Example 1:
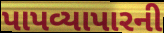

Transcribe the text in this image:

પાપવ્યાપારની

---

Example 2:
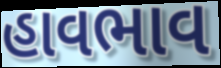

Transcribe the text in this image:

હાવભાવ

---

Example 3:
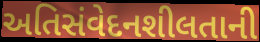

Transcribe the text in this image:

અતિસંવેદનશીલતાની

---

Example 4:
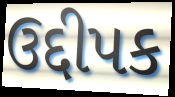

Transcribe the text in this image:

ઉદ્દીપક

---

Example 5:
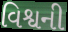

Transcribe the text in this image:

વિશ્વની